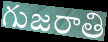
గుజరాతి